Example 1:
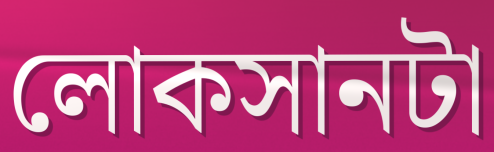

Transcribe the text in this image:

লোকসানটা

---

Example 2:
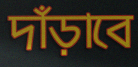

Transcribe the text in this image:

দাঁড়াবে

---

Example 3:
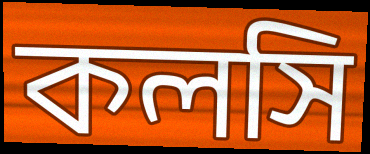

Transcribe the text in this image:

কলসি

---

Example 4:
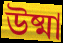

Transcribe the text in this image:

উষ্মা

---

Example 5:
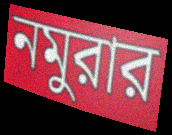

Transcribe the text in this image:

নমুরার